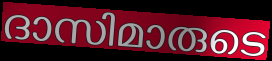
ദാസിമാരുടെ